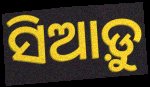
ସିଆଡ଼ୁ